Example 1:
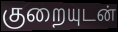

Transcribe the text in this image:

குறையுடன்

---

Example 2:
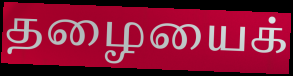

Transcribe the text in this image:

தழையைக்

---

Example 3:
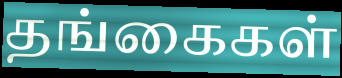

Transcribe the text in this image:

தங்கைகள்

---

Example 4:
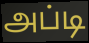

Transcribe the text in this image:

அப்டி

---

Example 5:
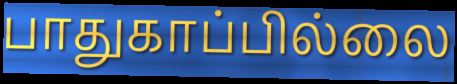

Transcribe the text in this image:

பாதுகாப்பில்லை